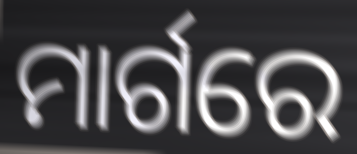
ମାର୍ଗରେ